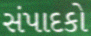
સંપાદકો